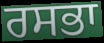
ਰਸਭਾ